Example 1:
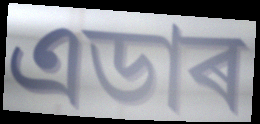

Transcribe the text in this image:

এডাৰ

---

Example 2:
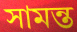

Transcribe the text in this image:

সামন্ত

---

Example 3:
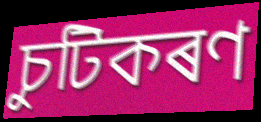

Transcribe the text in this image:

চুটিকৰণ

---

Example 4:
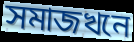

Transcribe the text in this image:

সমাজখনে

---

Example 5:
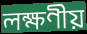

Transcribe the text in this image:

লক্ষণীয়